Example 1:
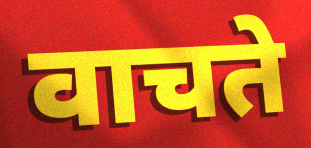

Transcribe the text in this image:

वाचते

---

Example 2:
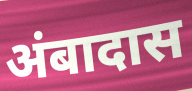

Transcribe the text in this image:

अंबादास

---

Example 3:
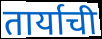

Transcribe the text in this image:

तार्याची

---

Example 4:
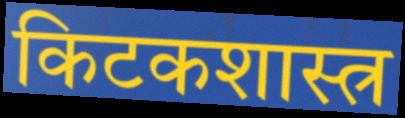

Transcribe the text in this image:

किटकशास्‍त्र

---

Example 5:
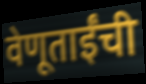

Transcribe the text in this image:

वेणूताईंची